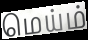
மெய்ம்